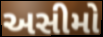
અસીમો